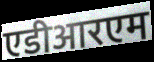
एडीआरएम